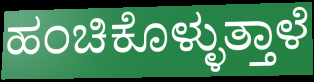
ಹಂಚಿಕೊಳ್ಳುತ್ತಾಳೆ